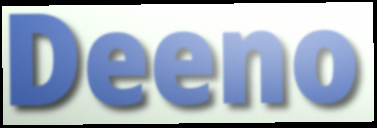
Deeno